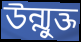
উন্মুক্ত